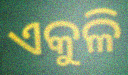
ଏକୁଳି